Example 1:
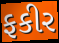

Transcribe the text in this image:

ફકીર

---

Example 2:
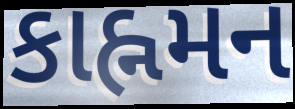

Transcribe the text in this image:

કાહ્નમન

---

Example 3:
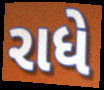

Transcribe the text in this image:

રાધે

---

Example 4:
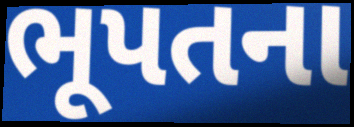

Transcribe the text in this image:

ભૂપતના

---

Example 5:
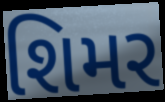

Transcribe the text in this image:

શિમર